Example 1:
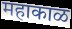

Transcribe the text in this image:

महाकाळ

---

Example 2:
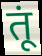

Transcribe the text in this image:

तूं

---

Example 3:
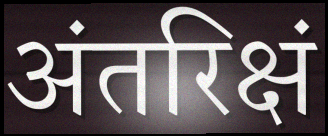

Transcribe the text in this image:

अंतरिक्षं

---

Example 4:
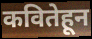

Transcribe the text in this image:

कवितेहून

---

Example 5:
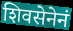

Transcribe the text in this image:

शिवसेनेनं